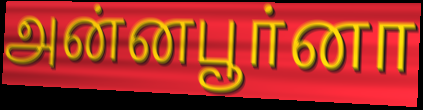
அன்னபூர்னா